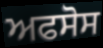
ਅਫਸੋਸ